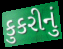
કુકરીનું